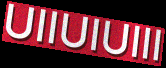
UIIUIUIII